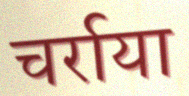
चर्राया